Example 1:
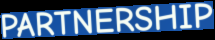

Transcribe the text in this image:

PARTNERSHIP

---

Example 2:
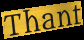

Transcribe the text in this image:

Thant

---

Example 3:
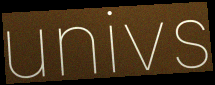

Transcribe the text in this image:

univs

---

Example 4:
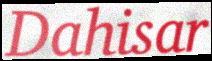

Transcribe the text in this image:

Dahisar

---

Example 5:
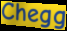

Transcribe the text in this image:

Chegg